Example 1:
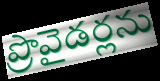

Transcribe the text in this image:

ప్రొవైడర్లను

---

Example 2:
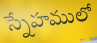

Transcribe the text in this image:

స్నేహములో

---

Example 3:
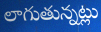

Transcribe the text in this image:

లాగుతున్నట్లు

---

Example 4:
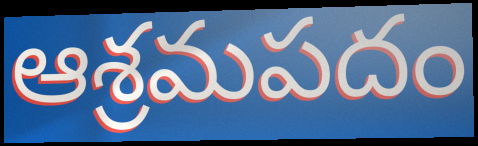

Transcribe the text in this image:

ఆశ్రమపదం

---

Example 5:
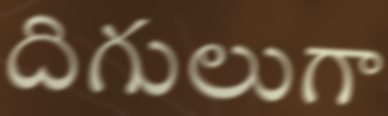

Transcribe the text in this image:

దిగులుగా